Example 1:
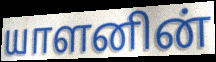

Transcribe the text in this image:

யாளனின்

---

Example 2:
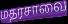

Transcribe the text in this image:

மதரசாவை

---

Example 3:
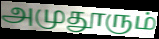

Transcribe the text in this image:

அமுதூரும்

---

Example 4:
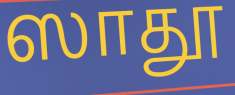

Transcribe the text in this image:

ஸாதூ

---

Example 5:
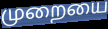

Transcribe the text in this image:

முறையை